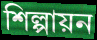
শিল্পায়ন